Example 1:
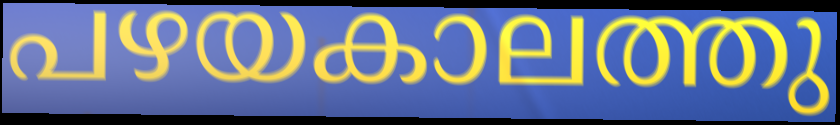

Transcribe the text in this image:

പഴയകാലത്തു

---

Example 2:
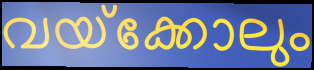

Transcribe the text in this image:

വയ്‌ക്കോലും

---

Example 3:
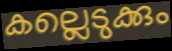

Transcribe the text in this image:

കല്ലെടുക്കും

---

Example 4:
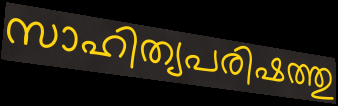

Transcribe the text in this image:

സാഹിത്യപരിഷത്തു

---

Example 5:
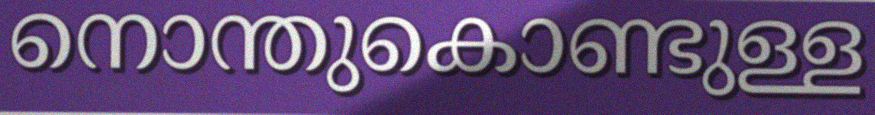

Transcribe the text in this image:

നൊന്തുകൊണ്ടുള്ള